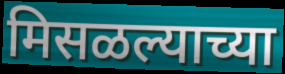
मिसळल्याच्या